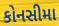
કોનસીમા